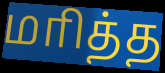
மரித்த